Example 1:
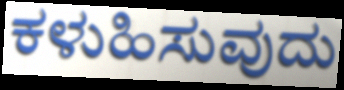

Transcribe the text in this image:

ಕಳುಹಿಸುವುದು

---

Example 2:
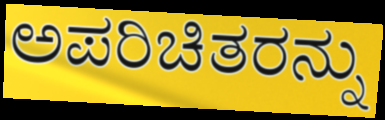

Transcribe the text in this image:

ಅಪರಿಚಿತರನ್ನು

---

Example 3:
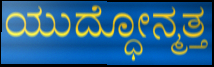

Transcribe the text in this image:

ಯುದ್ಧೋನ್ಮತ್ತ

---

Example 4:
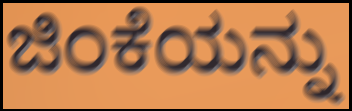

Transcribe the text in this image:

ಜಿಂಕೆಯನ್ನು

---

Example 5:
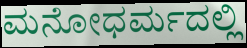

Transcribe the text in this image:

ಮನೋಧರ್ಮದಲ್ಲಿ